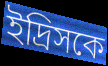
ইদ্রিসকে